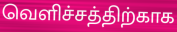
வெளிச்சத்திற்காக